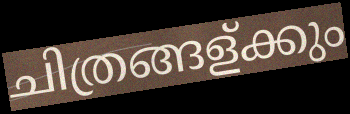
ചിത്രങ്ങള്ക്കും